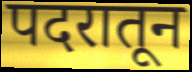
पदरातून